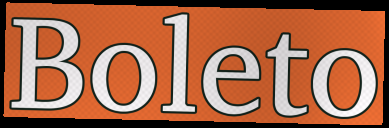
Boleto